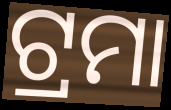
ଟ୍ରମା